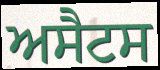
ਅਸੈਟਸ